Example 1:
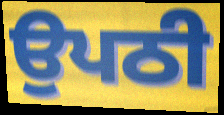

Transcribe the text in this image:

ਉਪਠੀ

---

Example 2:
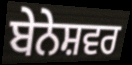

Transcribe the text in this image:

ਬੇਨੇਸ਼ਵਰ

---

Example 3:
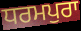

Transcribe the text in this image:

ਧਰਮਪੁਰਾ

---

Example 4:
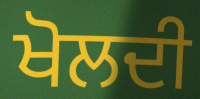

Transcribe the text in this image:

ਖੋਲਦੀ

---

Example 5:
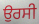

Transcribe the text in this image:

ਉਰਸੀ